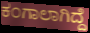
ಕಂಗಾಲಾಗಿದ್ದೆ